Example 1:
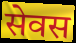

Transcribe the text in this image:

सेवस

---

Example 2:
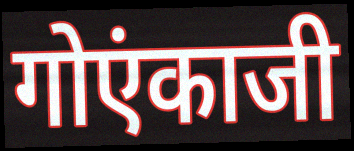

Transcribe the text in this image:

गोएंकाजी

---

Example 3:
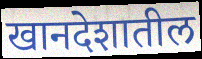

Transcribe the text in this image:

खानदेशातील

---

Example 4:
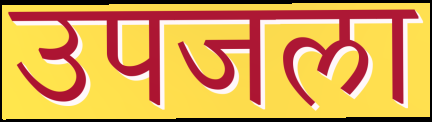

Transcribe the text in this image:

उपजला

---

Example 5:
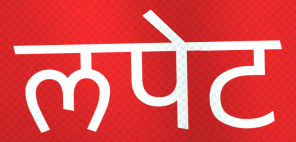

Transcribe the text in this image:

लपेट